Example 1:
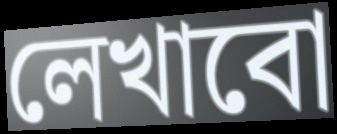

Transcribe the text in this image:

লেখাবো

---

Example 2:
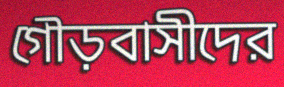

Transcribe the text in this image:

গৌড়বাসীদের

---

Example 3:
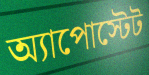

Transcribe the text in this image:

অ্যাপোস্টেট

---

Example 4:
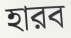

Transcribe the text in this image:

হারব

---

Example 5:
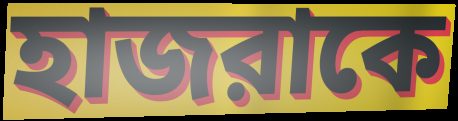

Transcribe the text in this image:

হাজরাকে